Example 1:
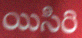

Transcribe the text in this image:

యిసిరి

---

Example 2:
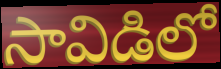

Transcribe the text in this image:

సావిడిలో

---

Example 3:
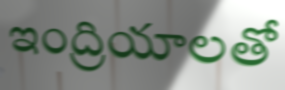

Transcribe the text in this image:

ఇంద్రియాలతో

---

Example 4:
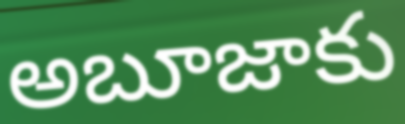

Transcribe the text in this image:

అబూజాకు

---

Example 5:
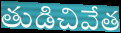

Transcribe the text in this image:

తుడిచివేత